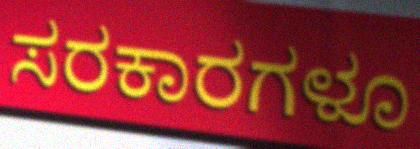
ಸರಕಾರಗಳೂ